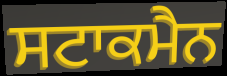
ਸਟਾਕਮੈਨ